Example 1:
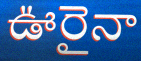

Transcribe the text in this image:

ఊరైనా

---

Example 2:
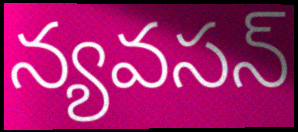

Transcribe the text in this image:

న్యవసన్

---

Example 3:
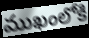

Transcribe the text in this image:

ముఖంలోకి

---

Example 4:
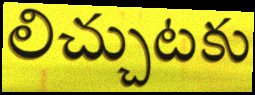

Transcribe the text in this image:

లిచ్చుటకు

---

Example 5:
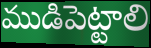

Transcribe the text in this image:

ముడిపెట్టాలి